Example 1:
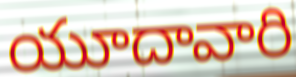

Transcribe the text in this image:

యూదావారి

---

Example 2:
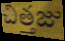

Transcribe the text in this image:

చిత్తజు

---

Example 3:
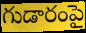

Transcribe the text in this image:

గుడారంపై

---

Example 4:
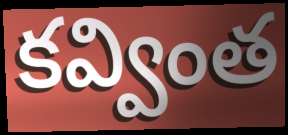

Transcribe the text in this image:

కవ్వింత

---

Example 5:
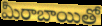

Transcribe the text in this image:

మీరాబాయితో